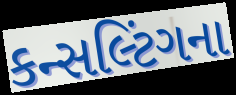
કન્સલ્ટિંગના